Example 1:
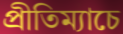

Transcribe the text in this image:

প্রীতিম্যাচে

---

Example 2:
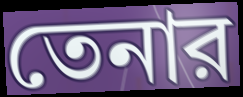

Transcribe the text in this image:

তেনার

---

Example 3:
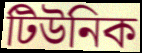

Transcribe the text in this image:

টিউনিক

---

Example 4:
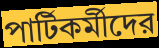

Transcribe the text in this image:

পার্টিকর্মীদের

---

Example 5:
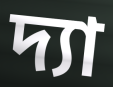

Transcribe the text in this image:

দ্যা